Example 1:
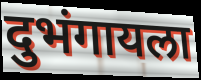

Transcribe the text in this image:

दुभंगायला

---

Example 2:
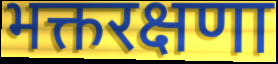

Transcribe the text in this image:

भक्तरक्षणा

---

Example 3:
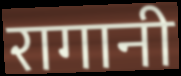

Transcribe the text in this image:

रागानी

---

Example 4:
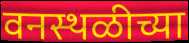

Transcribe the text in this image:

वनस्थळीच्या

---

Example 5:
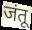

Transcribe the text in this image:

जंतू